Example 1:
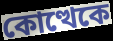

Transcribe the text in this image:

কোত্থেকে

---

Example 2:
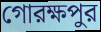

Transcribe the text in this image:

গোরক্ষপুর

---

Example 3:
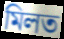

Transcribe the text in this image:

মিলত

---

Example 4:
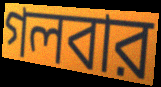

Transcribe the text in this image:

গলবার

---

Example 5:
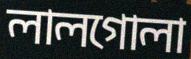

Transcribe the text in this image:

লালগোলা